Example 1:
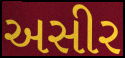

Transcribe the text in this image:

અસીર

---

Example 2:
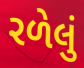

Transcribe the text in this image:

રળેલું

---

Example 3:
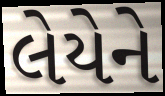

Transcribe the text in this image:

લેયેને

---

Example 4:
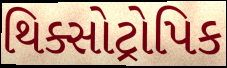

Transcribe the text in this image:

થિક્સોટ્રોપિક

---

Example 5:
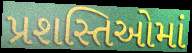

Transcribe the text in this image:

પ્રશસ્તિઓમાં